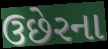
ઉછેરના